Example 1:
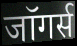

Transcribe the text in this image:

जॉगर्स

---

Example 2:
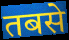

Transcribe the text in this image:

तबसे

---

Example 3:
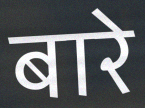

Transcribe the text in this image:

बारे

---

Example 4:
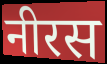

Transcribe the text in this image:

नीरस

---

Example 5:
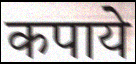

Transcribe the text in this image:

कपाये